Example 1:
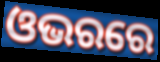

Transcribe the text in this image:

ଓଭରରେ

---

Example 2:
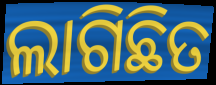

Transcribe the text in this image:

ଲାଗିଛିତ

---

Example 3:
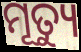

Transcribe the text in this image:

ମୂତ୍ୟୁ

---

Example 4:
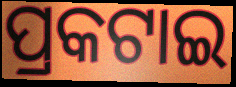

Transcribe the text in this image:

ପ୍ରକଟାଇ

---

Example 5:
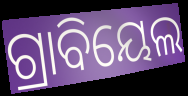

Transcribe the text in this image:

ଗ୍ରାବିୟେଲ